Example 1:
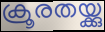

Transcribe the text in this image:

ക്രൂരതയ്ക്കു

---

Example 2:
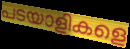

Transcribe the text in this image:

പടയാളികളെ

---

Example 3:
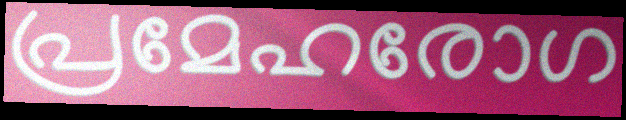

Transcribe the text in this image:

പ്രമേഹരോഗ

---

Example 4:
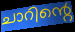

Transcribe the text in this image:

ചാറിന്റെ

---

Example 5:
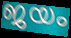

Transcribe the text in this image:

ജയം